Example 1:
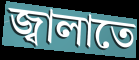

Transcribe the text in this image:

জ্বালাতে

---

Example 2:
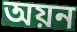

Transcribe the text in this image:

অয়ন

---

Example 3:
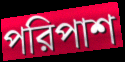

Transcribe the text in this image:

পরিপাশ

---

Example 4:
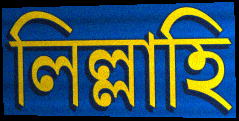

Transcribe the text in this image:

লিল্লাহি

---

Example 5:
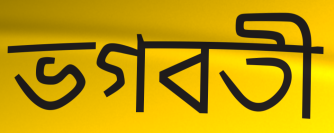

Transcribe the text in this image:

ভগবতী